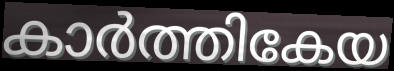
കാർത്തികേയ